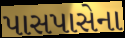
પાસપાસેના